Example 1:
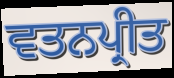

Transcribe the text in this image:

ਵਤਨਪ੍ਰੀਤ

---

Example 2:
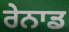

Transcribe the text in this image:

ਰੇਨਾਡ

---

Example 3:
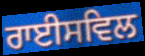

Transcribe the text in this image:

ਰਾਈਸਵਿਲ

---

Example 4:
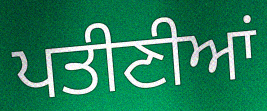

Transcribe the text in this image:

ਪਤੀਣੀਆਂ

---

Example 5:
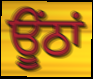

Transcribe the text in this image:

ਊਂਠਾਂ